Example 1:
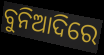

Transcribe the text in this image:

ବୁନିଆଦିରେ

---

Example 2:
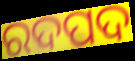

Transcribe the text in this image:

ରଦପଦ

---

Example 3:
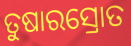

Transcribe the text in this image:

ତୁଷାରସ୍ରୋତ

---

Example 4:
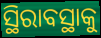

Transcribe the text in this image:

ସ୍ଥିରାବସ୍ଥାକୁ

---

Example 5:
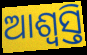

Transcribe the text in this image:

ଆଶ୍ଵସ୍ତି